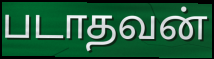
படாதவன்